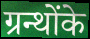
ग्रन्थोंके